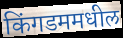
किंगडममधील